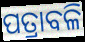
ପତ୍ରାବଳି